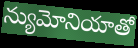
న్యుమోనియాతో